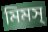
মিমস্